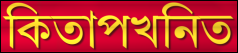
কিতাপখনিত